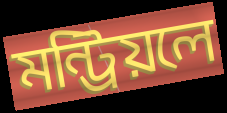
মন্ট্রিয়লে